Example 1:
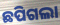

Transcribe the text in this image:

ଛପିଗଲା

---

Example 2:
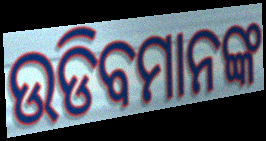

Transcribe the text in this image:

ଉଡିବମାନଙ୍କ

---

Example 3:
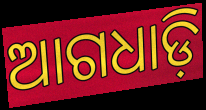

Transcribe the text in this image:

ଆଗଧାଡ଼ି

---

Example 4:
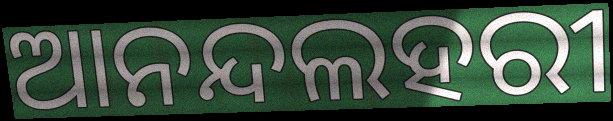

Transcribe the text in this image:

ଆନନ୍ଦଲହରୀ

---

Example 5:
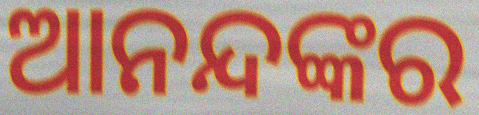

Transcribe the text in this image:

ଆନନ୍ଦଙ୍କର